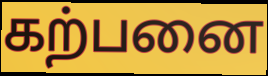
கற்பனை